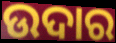
ଉଦାର